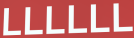
LLLLLL